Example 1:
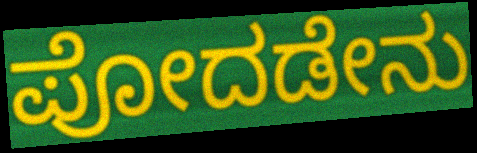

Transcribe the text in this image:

ಪೋದಡೇನು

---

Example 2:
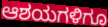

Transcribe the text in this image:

ಆಶಯಗಳಿಗೂ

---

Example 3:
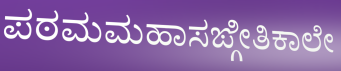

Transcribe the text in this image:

ಪಠಮಮಹಾಸಙ್ಗೀತಿಕಾಲೇ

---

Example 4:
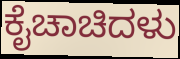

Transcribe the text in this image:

ಕೈಚಾಚಿದಳು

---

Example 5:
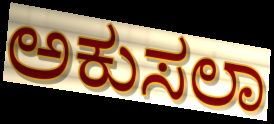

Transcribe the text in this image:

ಅಕುಸಲಾ